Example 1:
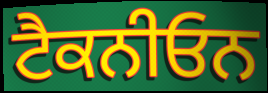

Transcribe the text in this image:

ਟੈਕਨੀਓਨ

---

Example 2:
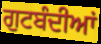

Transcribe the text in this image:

ਗੁਟਬੰਦੀਆਂ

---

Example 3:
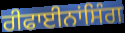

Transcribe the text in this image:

ਰੀਫਾਈਨਾਂਸਿੰਗ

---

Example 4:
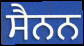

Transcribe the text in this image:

ਸੈਨਨ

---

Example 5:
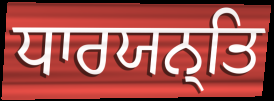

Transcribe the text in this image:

ਧਾਰਯਨ੍ਤਿ